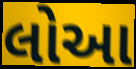
લોઆ